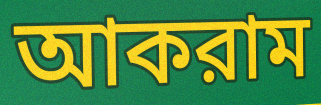
আকরাম